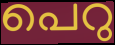
പെറു